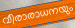
വീരാരാധനയും